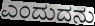
ಎಂದುದನು